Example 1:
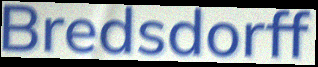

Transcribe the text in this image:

Bredsdorff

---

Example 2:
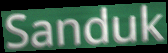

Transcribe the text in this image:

Sanduk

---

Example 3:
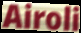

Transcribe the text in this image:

Airoli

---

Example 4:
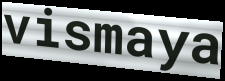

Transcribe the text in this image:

vismaya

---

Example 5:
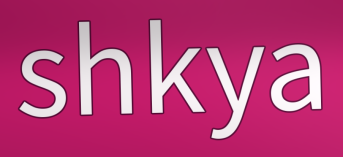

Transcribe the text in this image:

shkya